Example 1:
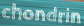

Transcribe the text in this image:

chondrin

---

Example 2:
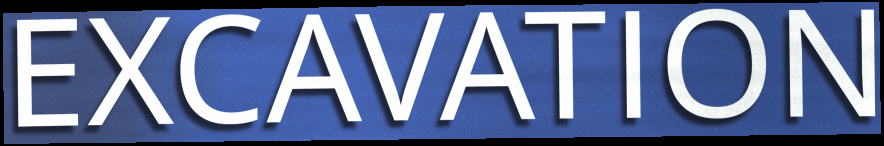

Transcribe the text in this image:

EXCAVATION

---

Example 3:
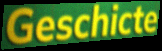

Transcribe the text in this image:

Geschicte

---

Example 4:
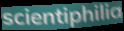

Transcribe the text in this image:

scientiphilia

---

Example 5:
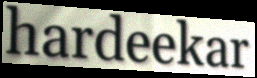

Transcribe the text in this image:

hardeekar